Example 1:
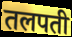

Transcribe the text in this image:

तलपती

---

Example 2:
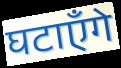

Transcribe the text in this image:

घटाएँगे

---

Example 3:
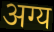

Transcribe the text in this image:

अग्य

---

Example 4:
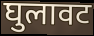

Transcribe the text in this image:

घुलावट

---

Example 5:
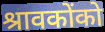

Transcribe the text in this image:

श्रावकोंको